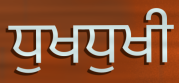
ਧੁਖਧੁਖੀ